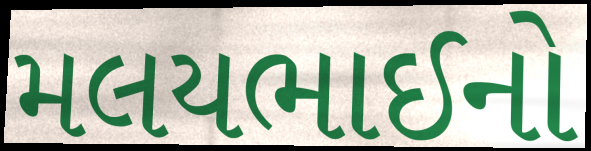
મલયભાઈનો